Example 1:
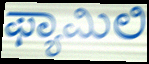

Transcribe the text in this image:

ಫ್ಯಾಮಿಲಿ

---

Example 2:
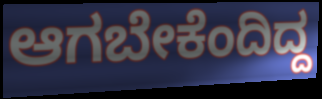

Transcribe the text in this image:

ಆಗಬೇಕೆಂದಿದ್ದ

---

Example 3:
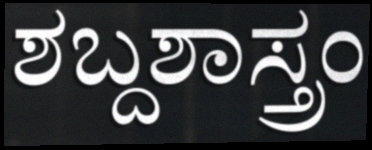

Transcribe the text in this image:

ಶಬ್ದಶಾಸ್ತ್ರಂ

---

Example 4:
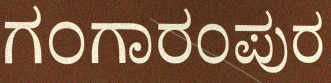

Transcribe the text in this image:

ಗಂಗಾರಂಪುರ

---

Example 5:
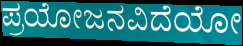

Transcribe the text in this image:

ಪ್ರಯೋಜನವಿದೆಯೋ